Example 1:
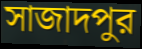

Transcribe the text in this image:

সাজাদপুর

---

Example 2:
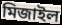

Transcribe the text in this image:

মিজাইল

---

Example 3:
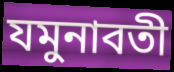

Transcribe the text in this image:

যমুনাবতী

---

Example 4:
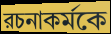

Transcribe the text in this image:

রচনাকর্মকে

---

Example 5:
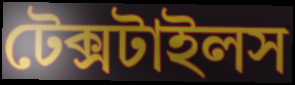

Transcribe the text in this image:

টেক্সটাইলস